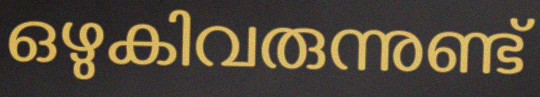
ഒഴുകിവരുന്നുണ്ട്